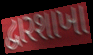
દ્વારશાખા